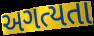
અગત્યતા